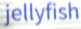
jellyfish